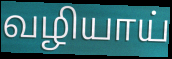
வழியாய்